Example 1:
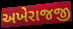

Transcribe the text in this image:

અખેરાજજી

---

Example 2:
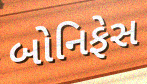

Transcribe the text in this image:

બોનિફેસ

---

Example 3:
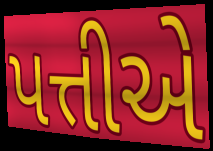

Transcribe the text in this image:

પત્તીએ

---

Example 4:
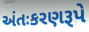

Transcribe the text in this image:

અંતઃકરણરૂપે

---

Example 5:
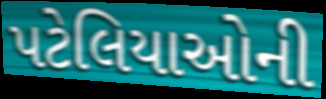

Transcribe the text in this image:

પટેલિયાઓની